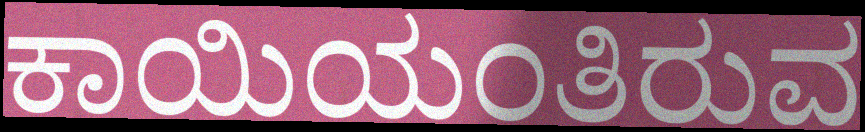
ಕಾಯಿಯಂತಿರುವ